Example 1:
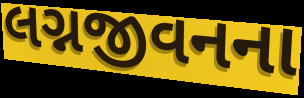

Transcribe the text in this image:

લગ્નજીવનના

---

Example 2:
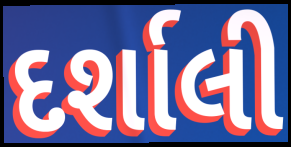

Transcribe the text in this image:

દર્શાલી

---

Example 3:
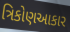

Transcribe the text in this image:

ત્રિકોણઆકાર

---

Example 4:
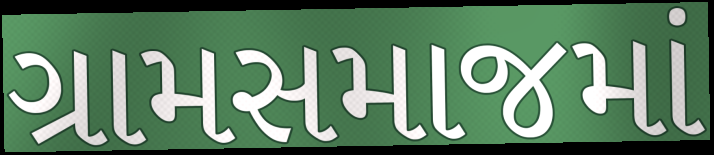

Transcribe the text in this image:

ગ્રામસમાજમાં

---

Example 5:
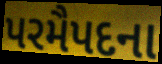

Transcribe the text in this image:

પરમૈપદના